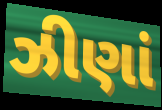
ઝીણાં